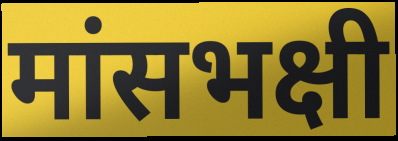
मांसभक्षी